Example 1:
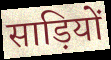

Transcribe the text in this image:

साड़ियों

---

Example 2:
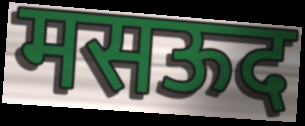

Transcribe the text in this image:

मसऊद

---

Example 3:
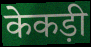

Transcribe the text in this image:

केकड़ी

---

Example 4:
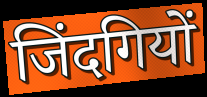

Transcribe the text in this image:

जिंदगियों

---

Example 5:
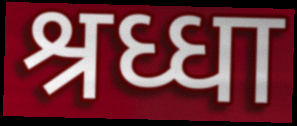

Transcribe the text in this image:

श्रध्धा